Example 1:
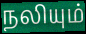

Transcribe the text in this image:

நலியும்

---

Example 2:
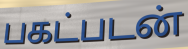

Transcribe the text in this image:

பகட்படன்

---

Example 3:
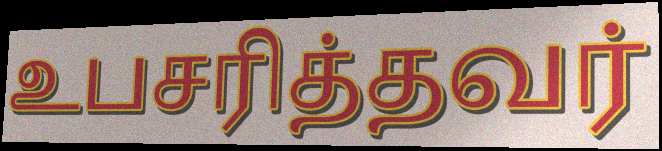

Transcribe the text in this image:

உபசரித்தவர்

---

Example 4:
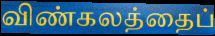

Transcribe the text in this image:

விண்கலத்தைப்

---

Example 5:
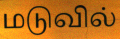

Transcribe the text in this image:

மடுவில்